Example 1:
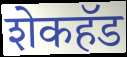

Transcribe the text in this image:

शेकहॅड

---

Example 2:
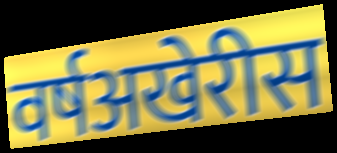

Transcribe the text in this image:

वर्षअखेरीस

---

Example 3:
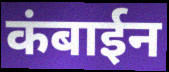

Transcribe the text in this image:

कंबाईन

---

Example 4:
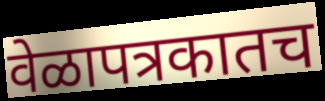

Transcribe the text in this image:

वेळापत्रकातच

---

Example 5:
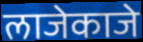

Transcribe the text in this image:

लाजेकाजे